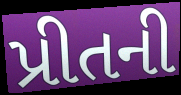
પ્રીતની